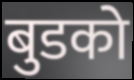
बुडको